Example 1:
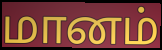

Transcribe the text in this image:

மானம்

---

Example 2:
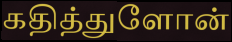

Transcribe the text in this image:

கதித்துளோன்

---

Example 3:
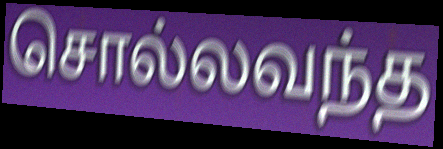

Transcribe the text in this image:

சொல்லவந்த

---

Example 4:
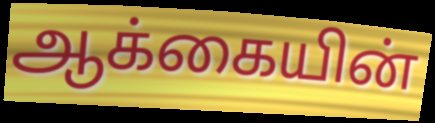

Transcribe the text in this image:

ஆக்கையின்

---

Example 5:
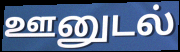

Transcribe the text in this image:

ஊனுடல்